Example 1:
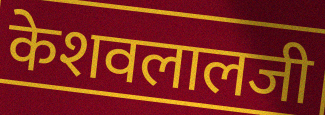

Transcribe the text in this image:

केशवलालजी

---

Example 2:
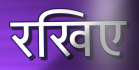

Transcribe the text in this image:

रखिए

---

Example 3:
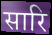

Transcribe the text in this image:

सारि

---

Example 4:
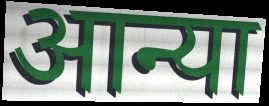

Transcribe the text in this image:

आन्या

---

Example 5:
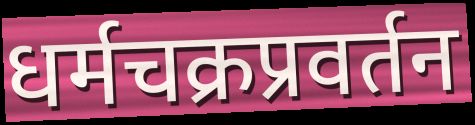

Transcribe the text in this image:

धर्मचक्रप्रवर्तन